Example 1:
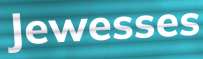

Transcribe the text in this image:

Jewesses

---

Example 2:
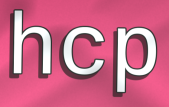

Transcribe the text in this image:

hcp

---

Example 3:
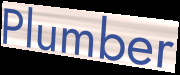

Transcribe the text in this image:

Plumber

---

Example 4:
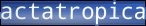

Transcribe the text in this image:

actatropica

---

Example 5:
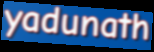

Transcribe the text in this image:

yadunath